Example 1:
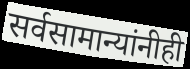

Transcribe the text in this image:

सर्वसामान्यांनीही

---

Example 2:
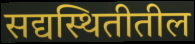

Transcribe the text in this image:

सद्यस्थितीतील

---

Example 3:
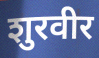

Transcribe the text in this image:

शुरवीर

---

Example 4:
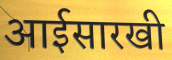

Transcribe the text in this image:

आईसारखी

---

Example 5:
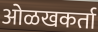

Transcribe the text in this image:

ओळखकर्ता